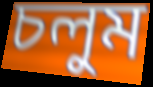
চলুম